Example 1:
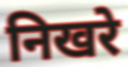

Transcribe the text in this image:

निखरे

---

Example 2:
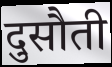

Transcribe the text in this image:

दुसौती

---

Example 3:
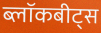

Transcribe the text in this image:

ब्लॉकबीट्स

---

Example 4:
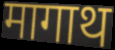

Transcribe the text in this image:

मागाथ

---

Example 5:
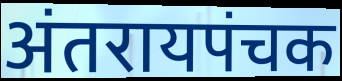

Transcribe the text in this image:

अंतरायपंचक